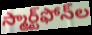
స్మార్ట్‌ఫోన్‌ల